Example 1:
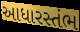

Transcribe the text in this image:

આધારસ્તંભ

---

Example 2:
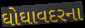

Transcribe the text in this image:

ઘોઘાવદરના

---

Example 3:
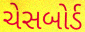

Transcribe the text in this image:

ચેસબોર્ડ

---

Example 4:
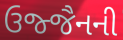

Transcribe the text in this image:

ઉજ્જૈનની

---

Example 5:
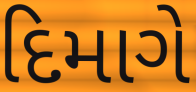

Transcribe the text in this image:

દિમાગે